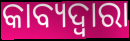
କାବ୍ୟଦ୍ୱାରା